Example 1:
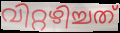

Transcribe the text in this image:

വിറ്റഴിച്ചത്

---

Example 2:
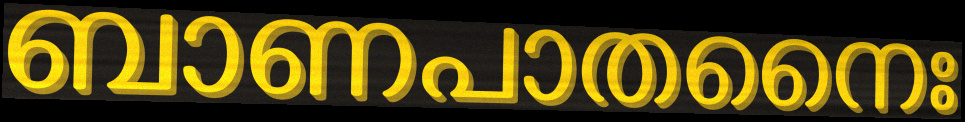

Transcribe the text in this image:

ബാണപാതനൈഃ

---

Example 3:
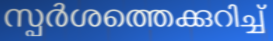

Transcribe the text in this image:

സ്പർശത്തെക്കുറിച്ച്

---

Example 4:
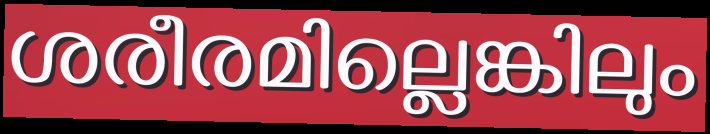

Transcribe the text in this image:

ശരീരമില്ലെങ്കിലും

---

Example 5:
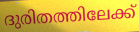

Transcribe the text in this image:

ദുരിതത്തിലേക്ക്